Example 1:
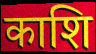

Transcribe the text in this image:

काशि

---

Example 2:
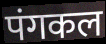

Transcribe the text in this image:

पंगकल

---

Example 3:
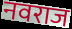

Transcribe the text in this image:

नवराज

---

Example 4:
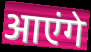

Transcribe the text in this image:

आएंगे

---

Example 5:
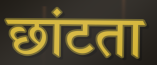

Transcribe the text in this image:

छांटता